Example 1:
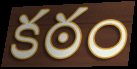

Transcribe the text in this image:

కఠం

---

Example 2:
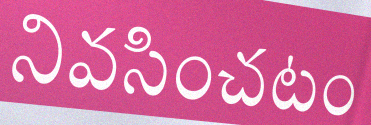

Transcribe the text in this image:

నివసించటం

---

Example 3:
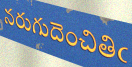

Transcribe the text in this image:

నరుగుదెంచితిఁ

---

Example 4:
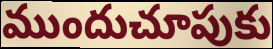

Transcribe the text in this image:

ముందుచూపుకు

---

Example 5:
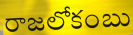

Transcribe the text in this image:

రాజలోకంబు